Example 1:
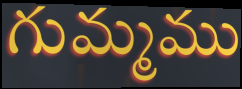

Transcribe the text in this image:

గుమ్మము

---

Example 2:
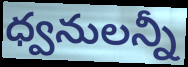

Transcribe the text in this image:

ధ్వనులన్నీ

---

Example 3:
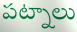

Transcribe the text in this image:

పట్నాలు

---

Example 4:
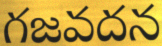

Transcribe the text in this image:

గజవదన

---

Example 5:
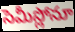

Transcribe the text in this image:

సెమీస్లోనూ